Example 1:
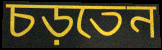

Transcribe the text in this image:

চড়তেন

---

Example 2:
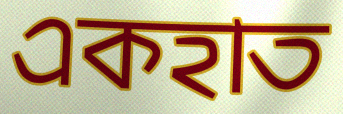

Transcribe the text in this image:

একহাত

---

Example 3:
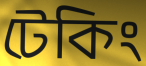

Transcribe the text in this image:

টেকিং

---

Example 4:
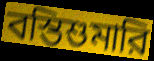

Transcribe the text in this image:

বস্তিশুমারি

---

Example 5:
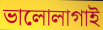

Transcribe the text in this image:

ভালোলাগাই